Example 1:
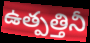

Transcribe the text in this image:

ఉత్పత్తినీ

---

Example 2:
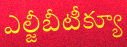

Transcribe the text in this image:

ఎల్జీబీటీక్యూ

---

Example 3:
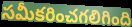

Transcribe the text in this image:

సమీకరించగలిగింది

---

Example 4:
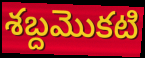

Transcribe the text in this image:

శబ్దమొకటి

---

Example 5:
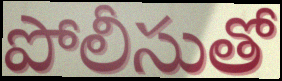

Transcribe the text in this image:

పోలీసుతో